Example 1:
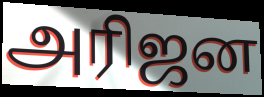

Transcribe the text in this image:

அரிஜன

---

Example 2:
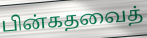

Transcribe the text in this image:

பின்கதவைத்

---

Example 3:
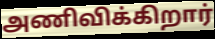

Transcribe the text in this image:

அணிவிக்கிறார்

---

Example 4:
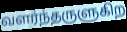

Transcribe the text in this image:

வளர்ந்தருளுகிற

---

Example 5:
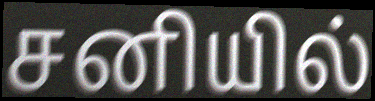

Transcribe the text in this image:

சனியில்